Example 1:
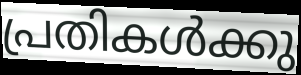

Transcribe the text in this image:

പ്രതികൾക്കു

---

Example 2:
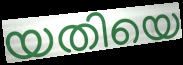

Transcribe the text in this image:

യതിയെ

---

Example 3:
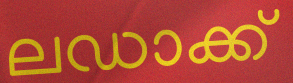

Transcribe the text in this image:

ലഡാക്ക്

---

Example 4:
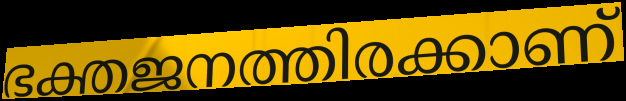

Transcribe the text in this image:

ഭക്തജനത്തിരക്കാണ്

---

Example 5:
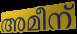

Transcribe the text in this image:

അമീന്